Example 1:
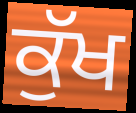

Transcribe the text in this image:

ਕੁੱਖ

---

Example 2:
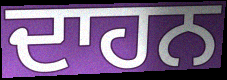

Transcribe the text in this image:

ਦਾਹਨ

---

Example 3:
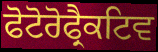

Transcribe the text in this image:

ਫੋਟੋਰੋਫ੍ਰੈਕਟਿਵ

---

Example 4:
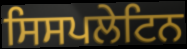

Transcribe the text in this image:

ਸਿਸਪਲੇਟਿਨ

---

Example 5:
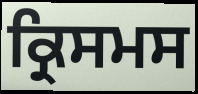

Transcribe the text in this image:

ਕ੍ਰਿਸਮਸ